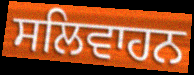
ਸਲਿਵਾਹਨ